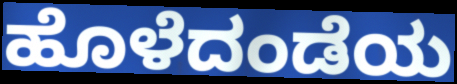
ಹೊಳೆದಂಡೆಯ